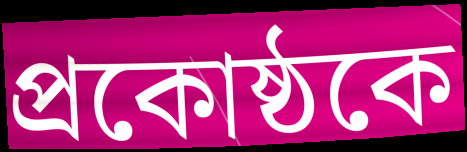
প্রকোষ্ঠকে